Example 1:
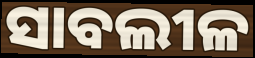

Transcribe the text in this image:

ସାବଲୀଳ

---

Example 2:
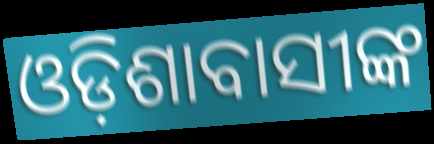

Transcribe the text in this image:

ଓଡ଼ିଶାବାସୀଙ୍କ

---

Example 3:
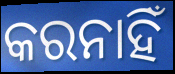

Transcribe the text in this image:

କରନାହିଁ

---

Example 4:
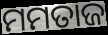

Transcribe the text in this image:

ମମତାଜ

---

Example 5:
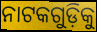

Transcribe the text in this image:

ନାଟକଗୁଡ଼ିକୁ